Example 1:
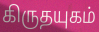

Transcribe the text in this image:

கிருதயுகம்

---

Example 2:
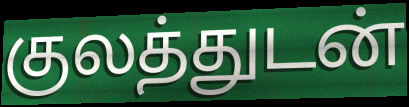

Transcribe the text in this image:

குலத்துடன்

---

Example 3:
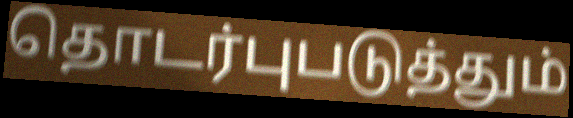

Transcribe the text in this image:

தொடர்புபடுத்தும்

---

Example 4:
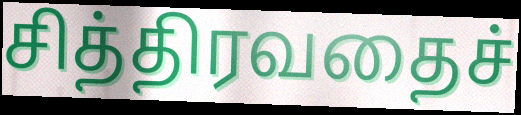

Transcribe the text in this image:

சித்திரவதைச்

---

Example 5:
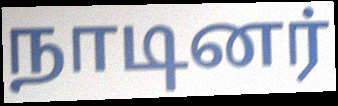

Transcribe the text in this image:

நாடினர்